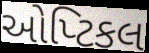
ઓપ્ટિકલ